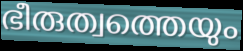
ഭീരുത്വത്തെയും